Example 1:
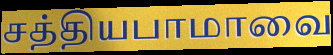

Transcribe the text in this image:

சத்தியபாமாவை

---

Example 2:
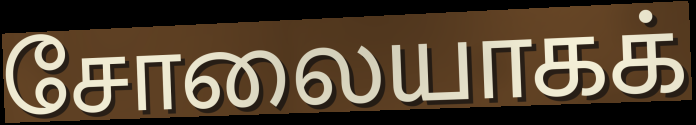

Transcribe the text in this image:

சோலையாகக்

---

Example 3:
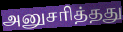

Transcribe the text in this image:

அனுசரித்தது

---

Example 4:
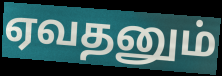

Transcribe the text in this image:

ஏவதனும்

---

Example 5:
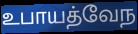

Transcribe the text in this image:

உபாயத்வேந